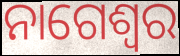
ନାଗେଶ୍ଵର